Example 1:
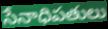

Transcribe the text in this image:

సేనాధిపతులు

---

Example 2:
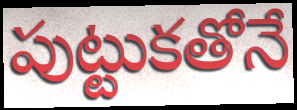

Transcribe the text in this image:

పుట్టుకతోనే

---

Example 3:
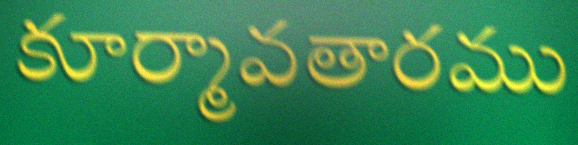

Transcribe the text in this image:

కూర్మావతారము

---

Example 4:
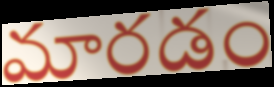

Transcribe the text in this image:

మారడం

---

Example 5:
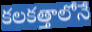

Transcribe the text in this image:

కలకత్తాలోనే